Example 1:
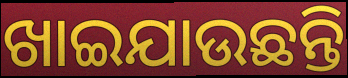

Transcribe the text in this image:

ଖାଇଯାଉଛନ୍ତି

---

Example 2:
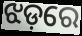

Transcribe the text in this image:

ଝଡ଼ରେ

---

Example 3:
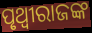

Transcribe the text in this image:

ପୃଥ୍ୱୀରାଜଙ୍କ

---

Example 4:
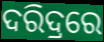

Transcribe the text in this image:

ଦରିଦ୍ରରେ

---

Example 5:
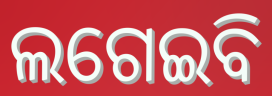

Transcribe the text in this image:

ଲଗେଇବି